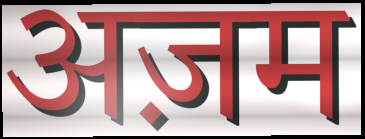
अज़म